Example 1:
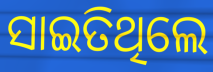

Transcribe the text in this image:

ସାଇତିଥିଲେ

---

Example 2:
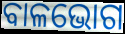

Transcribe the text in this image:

ବାଳଭୋଗ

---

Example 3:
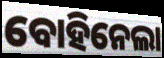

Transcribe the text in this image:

ବୋହିନେଲା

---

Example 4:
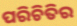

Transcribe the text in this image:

ପରିଚିତିର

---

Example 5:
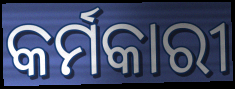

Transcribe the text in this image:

କର୍ମକାରୀ